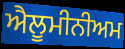
ਐਲੂਮੀਨੀਅਮ